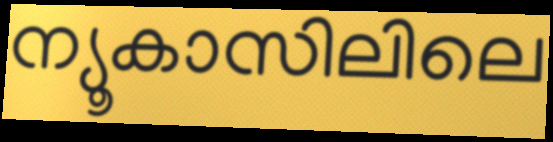
ന്യൂകാസിലിലെ